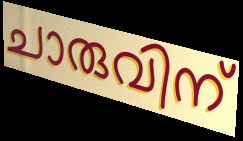
ചാരുവിന്